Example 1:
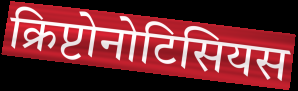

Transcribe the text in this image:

क्रिप्टोनोटिसियस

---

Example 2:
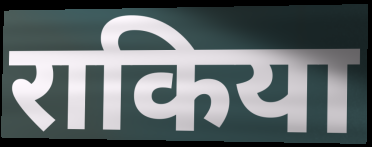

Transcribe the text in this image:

राकिया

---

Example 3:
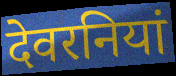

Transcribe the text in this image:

देवरनियां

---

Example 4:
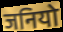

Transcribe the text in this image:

जनियो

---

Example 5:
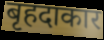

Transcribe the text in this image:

बृहदाकार